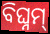
ବିଘ୍ନମ୍